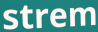
strem